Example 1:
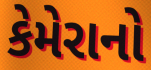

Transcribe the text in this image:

કેમેરાનો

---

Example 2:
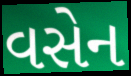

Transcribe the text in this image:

વસેન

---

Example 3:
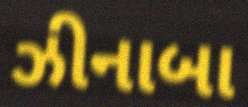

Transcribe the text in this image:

ઝીનાબા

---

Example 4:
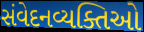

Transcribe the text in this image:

સંવેદનવ્યક્તિઓ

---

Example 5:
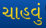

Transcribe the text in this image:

ચાહવું